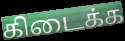
கிடைக்க